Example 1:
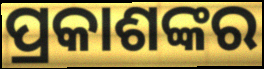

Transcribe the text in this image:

ପ୍ରକାଶଙ୍କର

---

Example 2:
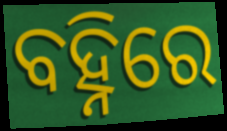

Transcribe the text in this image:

ବହ୍ନିରେ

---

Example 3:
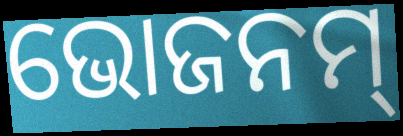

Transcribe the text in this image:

ଭୋଜନମ୍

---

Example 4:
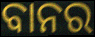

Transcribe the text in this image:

ବାନର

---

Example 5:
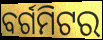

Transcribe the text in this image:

ବର୍ଗମିଟର